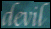
devil